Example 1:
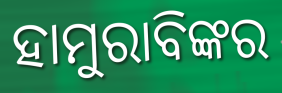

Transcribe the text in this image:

ହାମୁରାବିଙ୍କର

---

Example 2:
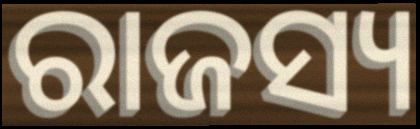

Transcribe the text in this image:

ରାଜସ୍ୟ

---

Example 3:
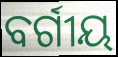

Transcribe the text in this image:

ବର୍ଗୀୟ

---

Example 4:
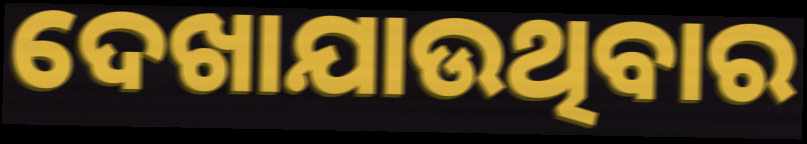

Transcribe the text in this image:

ଦେଖାଯାଉଥିବାର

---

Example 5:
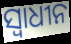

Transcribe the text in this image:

ସ୍ବାଧୀନ